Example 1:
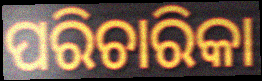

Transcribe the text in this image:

ପରିଚାରିକା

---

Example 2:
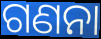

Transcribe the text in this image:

ଗଣନା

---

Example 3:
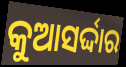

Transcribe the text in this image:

କୁଆସର୍ଦ୍ଦାର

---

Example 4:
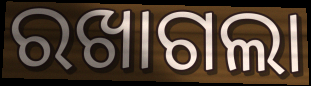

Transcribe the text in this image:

ରଖାଗଲା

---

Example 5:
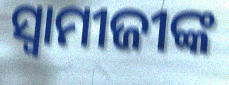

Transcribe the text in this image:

ସ୍ୱାମୀଜୀଙ୍କ